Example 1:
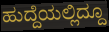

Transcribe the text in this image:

ಹುದ್ದೆಯಲ್ಲಿದ್ದೂ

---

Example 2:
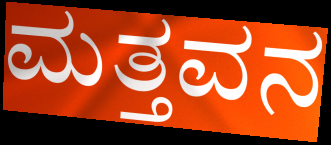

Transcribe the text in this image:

ಮತ್ತವನ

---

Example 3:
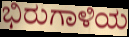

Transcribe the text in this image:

ಭಿರುಗಾಳಿಯ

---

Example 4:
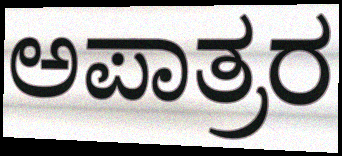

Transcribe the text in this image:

ಅಪಾತ್ರರ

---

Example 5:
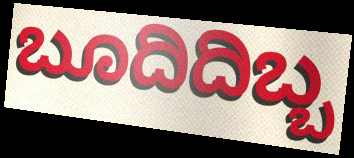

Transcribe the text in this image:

ಬೂದಿದಿಬ್ಬ